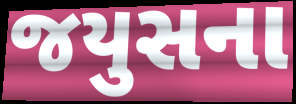
જયુસના